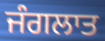
ਜੰਗਲਾਤ